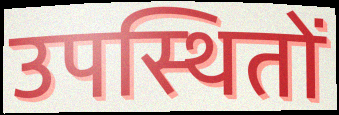
उपस्थितों